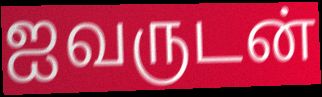
ஐவருடன்